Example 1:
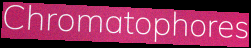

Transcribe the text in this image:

Chromatophores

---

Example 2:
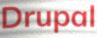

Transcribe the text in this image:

Drupal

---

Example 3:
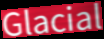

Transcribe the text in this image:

Glacial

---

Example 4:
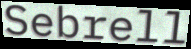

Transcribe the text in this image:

Sebrell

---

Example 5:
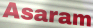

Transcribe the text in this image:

Asaram